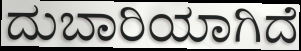
ದುಬಾರಿಯಾಗಿದೆ